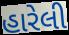
હારેલી